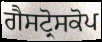
ਗੈਸਟ੍ਰੋਸਕੋਪ